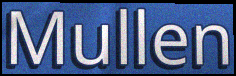
Mullen